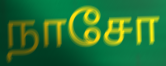
நாசோ